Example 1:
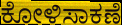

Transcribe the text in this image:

ಕೋಳಿಸಾಕಣೆ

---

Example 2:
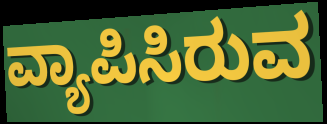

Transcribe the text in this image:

ವ್ಯಾಪಿಸಿರುವ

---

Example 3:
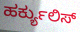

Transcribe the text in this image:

ಹರ್ಕ್ಯುಲಿಸ್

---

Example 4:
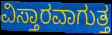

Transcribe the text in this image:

ವಿಸ್ತಾರವಾಗುತ್ತ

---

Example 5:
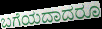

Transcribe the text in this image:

ಬಗೆಯದಾದರೂ